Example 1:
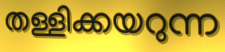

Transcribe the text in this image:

തള്ളിക്കയറുന്ന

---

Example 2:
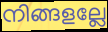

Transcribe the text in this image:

നിങ്ങളല്ലേ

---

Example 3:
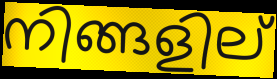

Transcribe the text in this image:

നിങ്ങളില്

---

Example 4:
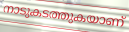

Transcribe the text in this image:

നാടുകടത്തുകയാണ്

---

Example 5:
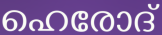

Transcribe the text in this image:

ഹെരോദ്